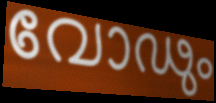
വോഢും